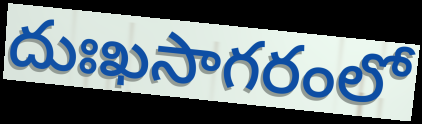
దుఃఖసాగరంలో